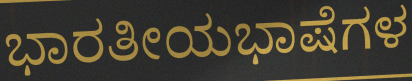
ಭಾರತೀಯಭಾಷೆಗಳ